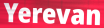
Yerevan